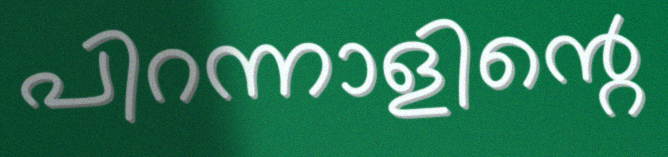
പിറന്നാളിന്റെ